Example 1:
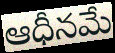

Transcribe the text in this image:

ఆధీనమే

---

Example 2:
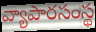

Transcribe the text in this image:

వ్యాపారసంస్థ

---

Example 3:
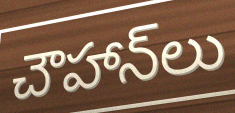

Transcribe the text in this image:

చౌహాన్‌లు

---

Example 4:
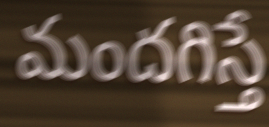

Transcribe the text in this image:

మందగిస్తే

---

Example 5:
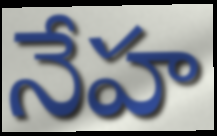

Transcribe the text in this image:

నేహ